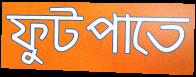
ফুটপাতে